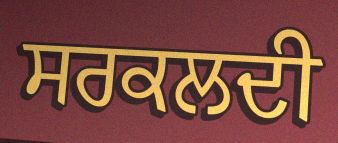
ਸਰਕਲਦੀ